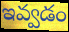
ఇవ్వడం